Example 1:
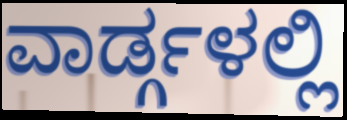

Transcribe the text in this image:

ವಾರ್ಡ್ಗಳಲ್ಲಿ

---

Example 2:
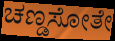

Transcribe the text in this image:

ಚಣ್ಡಸೋತೇ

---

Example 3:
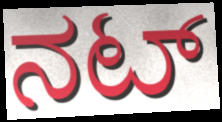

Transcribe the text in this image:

ನಟ್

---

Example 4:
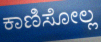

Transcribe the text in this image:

ಕಾಣಿಸೋಲ್ಲ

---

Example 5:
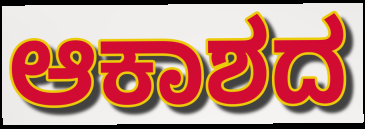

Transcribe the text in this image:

ಆಕಾಶದ